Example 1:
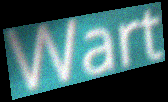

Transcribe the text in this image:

Wart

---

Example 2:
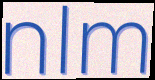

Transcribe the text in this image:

nlm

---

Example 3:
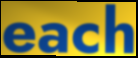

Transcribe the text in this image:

each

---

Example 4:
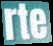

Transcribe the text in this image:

rte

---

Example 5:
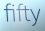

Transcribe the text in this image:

fifty